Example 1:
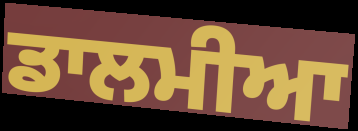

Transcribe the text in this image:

ਡਾਲਮੀਆ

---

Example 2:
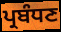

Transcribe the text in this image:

ਪ੍ਰਬੰਧਣ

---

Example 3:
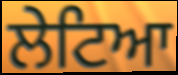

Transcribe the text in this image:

ਲੇਟਿਆ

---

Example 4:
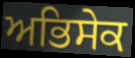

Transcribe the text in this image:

ਅਭਿਸੇਕ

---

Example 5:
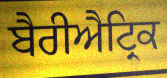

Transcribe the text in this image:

ਬੈਰੀਐਟ੍ਰਿਕ